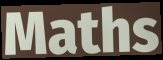
Maths